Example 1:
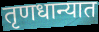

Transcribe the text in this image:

तृणधान्यात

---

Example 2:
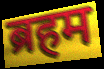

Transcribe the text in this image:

ब्रहम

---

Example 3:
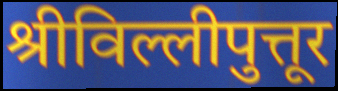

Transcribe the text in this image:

श्रीविल्लीपुत्तूर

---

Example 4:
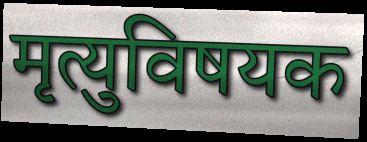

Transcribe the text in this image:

मृत्युविषयक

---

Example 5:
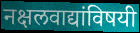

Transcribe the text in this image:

नक्षलवाद्यांविषयी